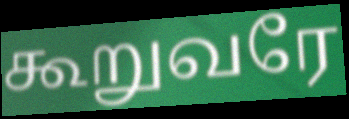
கூறுவரே